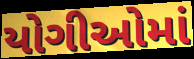
યોગીઓમાં